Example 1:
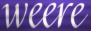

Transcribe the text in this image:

weere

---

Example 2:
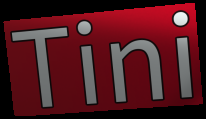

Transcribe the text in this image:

Tini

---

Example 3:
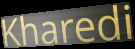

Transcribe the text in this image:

Kharedi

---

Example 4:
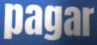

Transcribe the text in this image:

pagar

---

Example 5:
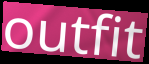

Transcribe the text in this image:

outfit